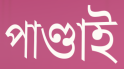
পাণ্ডাই